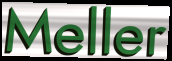
Meller